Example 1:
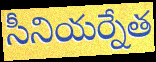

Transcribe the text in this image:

సీనియర్నేత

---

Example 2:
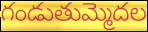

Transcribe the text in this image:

గండుతుమ్మెదల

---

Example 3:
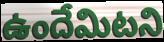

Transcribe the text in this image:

ఉందేమిటని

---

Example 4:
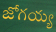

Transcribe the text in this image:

జోగయ్య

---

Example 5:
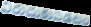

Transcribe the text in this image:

విరుచుకుపడటం